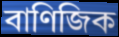
বাণিজিক